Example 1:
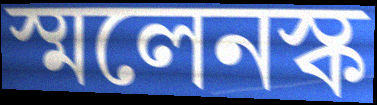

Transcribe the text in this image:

স্মলেনস্ক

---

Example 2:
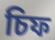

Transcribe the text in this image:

চিফ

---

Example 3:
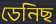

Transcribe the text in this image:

ডেনিছ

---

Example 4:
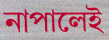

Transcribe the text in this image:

নাপালেই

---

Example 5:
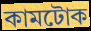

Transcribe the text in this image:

কামটোক